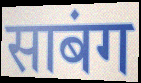
साबंग